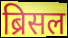
ब्रिसल